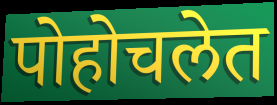
पोहोचलेत